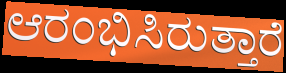
ಆರಂಭಿಸಿರುತ್ತಾರೆ